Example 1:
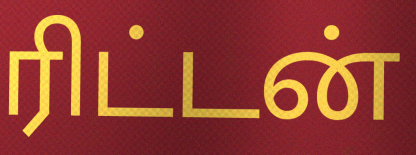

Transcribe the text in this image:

ரிட்டன்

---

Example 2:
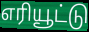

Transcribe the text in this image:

எரியூட்டு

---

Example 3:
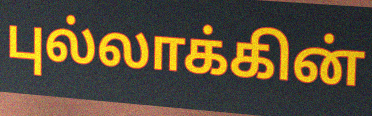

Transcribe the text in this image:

புல்லாக்கின்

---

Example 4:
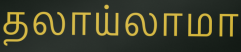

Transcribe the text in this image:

தலாய்லாமா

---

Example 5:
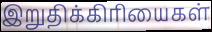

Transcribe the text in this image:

இறுதிக்கிரியைகள்